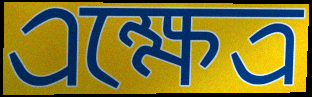
এক্ষেত্র